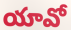
యావో